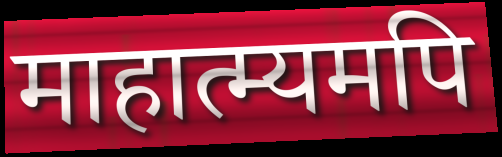
माहात्म्यमपि